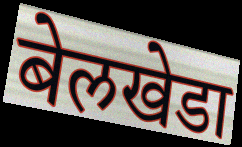
बेलखेडा